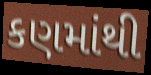
કણમાંથી